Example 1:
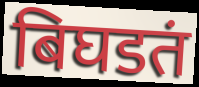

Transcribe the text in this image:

बिघडतं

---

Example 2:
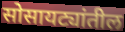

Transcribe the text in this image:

सोसायट्यांतील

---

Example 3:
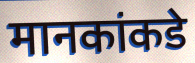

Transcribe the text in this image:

मानकांकडे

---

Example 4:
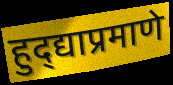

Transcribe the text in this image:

हुद्द्याप्रमाणे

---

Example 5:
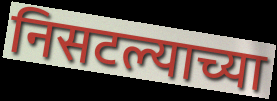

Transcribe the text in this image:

निसटल्याच्या